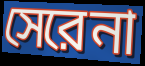
সেরেনা